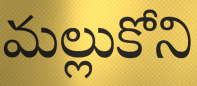
మల్లుకోని